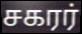
சகரர்